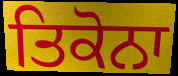
ਤਿਕੋਨਾ